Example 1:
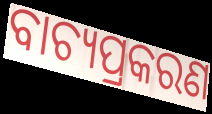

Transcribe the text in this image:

ବାଚ୍ୟପ୍ରକରଣ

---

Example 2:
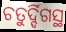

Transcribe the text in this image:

ଚତୁର୍ଦ୍ଦିଗସ୍ଥ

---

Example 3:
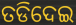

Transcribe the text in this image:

ତଡିଦେଇ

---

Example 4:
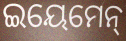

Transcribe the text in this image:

ଇୟେମେନ୍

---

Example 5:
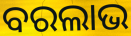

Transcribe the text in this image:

ବରଲାଭ